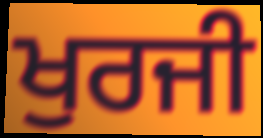
ਖੁਰਜੀ